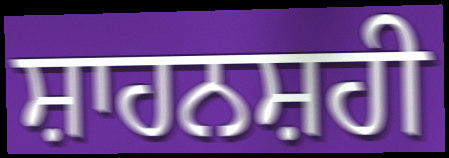
ਸ਼ਾਹਨਸ਼ਹੀ